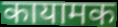
कायामक